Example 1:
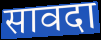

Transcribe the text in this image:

सावदा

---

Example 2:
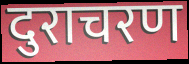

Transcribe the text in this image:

दुराचरण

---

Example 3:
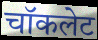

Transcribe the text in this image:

चॉकलेट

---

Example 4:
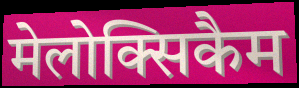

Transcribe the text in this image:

मेलोक्सिकैम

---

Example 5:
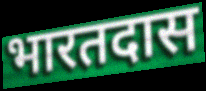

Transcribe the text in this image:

भारतदास